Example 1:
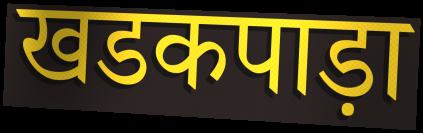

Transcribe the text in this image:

खडकपाड़ा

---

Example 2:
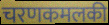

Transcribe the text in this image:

चरणकमलकी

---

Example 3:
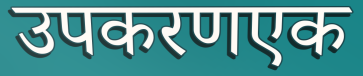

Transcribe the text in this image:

उपकरणएक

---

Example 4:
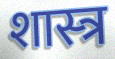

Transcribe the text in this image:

शास्‍त्र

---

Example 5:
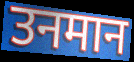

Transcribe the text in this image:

उनमान